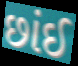
છાંઈ